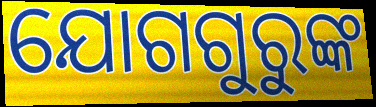
ଯୋଗଗୁରୁଙ୍କ